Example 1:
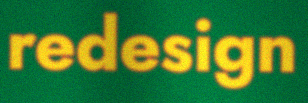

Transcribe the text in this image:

redesign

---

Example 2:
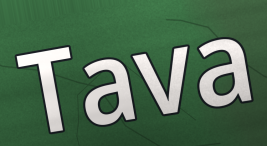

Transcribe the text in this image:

Tava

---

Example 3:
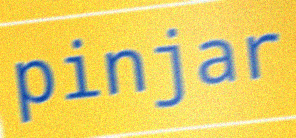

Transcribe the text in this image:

pinjar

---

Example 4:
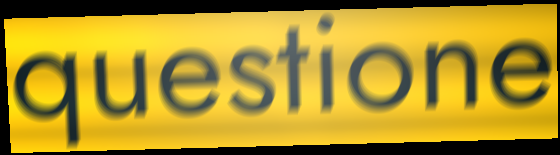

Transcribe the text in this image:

questione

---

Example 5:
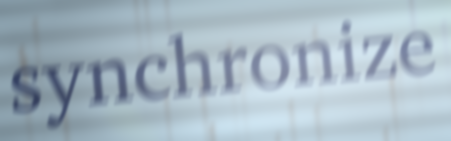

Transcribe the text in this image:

synchronize